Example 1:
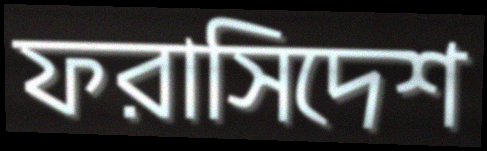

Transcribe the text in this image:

ফরাসিদেশ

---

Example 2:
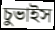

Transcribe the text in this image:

চুভাইস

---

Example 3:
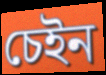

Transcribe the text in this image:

চেইন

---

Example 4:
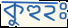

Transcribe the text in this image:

কুহুহঃ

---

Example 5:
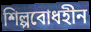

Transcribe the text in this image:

শিল্পবোধহীন